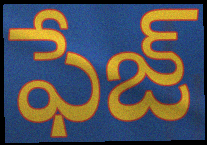
ఫేజ్